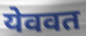
येववत